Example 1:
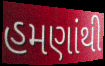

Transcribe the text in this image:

હમણાંથી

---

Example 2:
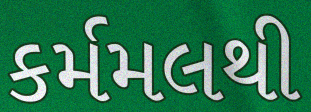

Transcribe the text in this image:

કર્મમલથી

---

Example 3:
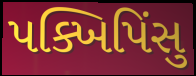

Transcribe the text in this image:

પક્ખિપિંસુ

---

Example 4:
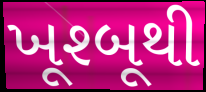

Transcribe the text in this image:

ખૂશ્બૂથી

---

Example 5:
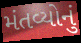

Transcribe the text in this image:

મંતવ્યોનું